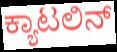
ಕ್ಯಾಟಲಿನ್